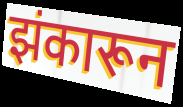
झंकारून